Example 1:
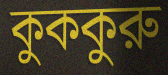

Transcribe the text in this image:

কুককুরু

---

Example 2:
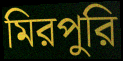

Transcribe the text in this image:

মিরপুরি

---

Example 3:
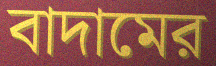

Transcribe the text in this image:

বাদামের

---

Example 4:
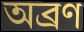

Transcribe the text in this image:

অব্রণ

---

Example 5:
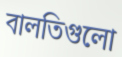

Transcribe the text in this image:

বালতিগুলো